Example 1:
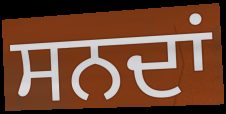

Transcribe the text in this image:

ਸਨਦਾਂ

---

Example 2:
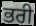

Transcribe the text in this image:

ਭਰੀ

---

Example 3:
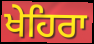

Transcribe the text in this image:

ਖੇਹਿਰਾ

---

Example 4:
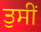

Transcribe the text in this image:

ਤੁਸੀਂ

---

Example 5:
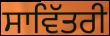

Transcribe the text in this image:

ਸਾਵਿੱਤਰੀ